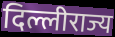
दिल्लीराज्य